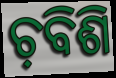
ଚ଼ବିଶି